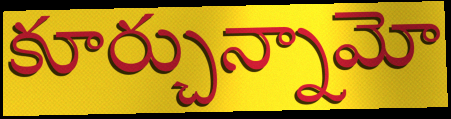
కూర్చున్నామో